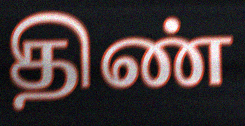
திண்